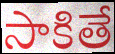
సాకితే